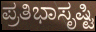
ಪ್ರತಿಭಾಸೃಷ್ಟಿ